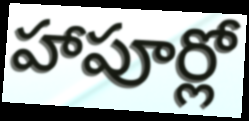
హాపూర్లో